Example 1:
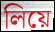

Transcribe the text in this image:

লিয়ে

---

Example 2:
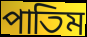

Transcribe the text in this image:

পাতিম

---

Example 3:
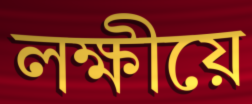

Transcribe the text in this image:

লক্ষীয়ে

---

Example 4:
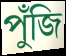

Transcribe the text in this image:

পুঁজি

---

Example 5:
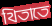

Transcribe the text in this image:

থিতাতে